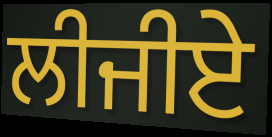
ਲੀਜੀਏ